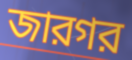
জারগর